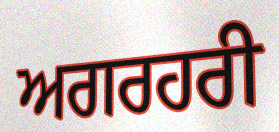
ਅਗਰਹਰੀ